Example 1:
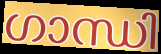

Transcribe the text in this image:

ഗാന്ധി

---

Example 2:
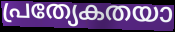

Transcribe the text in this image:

പ്രത്യേകതയാ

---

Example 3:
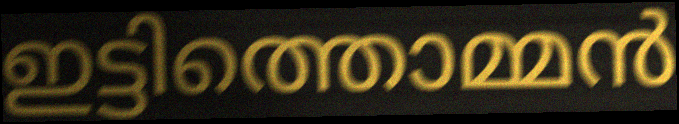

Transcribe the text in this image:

ഇട്ടിത്തൊമ്മൻ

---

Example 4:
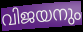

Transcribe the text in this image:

വിജയനും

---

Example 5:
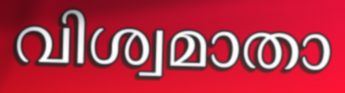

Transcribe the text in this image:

വിശ്വമാതാ